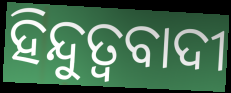
ହିନ୍ଦୁତ୍ବବାଦୀ